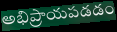
అభిప్రాయపడడం